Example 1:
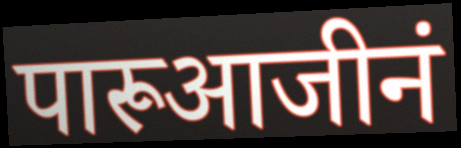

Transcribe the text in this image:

पारूआजीनं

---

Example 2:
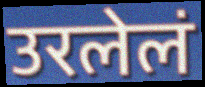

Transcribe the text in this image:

उरलेलं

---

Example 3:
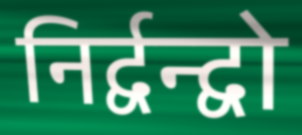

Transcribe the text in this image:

निर्द्वन्द्वो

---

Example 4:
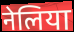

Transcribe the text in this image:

नेलिया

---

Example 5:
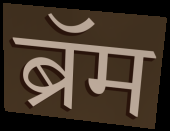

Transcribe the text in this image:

ब्रॅम